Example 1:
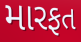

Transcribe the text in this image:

મારફત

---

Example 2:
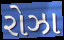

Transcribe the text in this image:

રોઝા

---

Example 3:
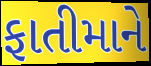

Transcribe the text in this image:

ફાતીમાને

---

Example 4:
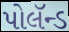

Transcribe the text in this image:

પોલૅન્ડ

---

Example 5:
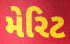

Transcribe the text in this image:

મેરિટ